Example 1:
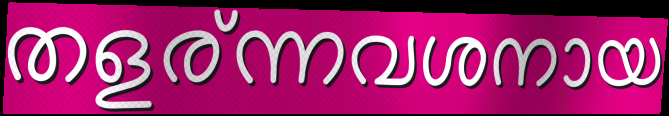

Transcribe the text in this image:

തളര്ന്നവശനായ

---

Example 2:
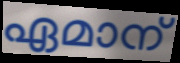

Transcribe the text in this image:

ഏമാന്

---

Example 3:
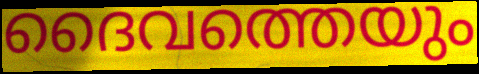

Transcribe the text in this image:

ദൈവത്തെയും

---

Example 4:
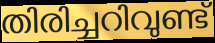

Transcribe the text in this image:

തിരിച്ചറിവുണ്ട്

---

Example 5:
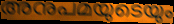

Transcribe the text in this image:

അനുപമയുടെയും